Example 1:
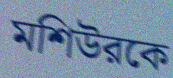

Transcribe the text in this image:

মশিউরকে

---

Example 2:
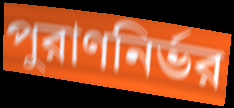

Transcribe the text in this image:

পুরাণনির্ভর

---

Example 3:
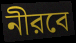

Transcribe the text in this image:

নীরবে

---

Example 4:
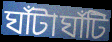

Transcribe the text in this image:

ঘাঁটাঘাঁটি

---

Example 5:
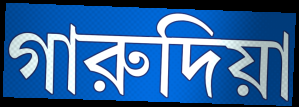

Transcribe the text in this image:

গারুদিয়া